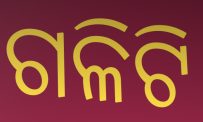
ଗଳିଟି